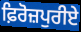
ਫ਼ਿਰੋਜ਼ਪੁਰੀਏ